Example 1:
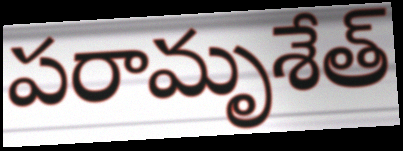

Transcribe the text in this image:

పరామృశేత్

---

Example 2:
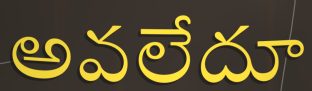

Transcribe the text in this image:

అవలేదూ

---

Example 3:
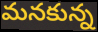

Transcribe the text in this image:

మనకున్న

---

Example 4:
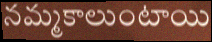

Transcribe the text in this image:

నమ్మకాలుంటాయి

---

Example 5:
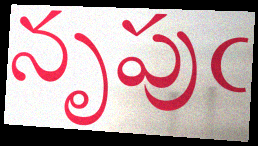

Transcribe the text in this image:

నృపుఁ